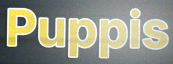
Puppis